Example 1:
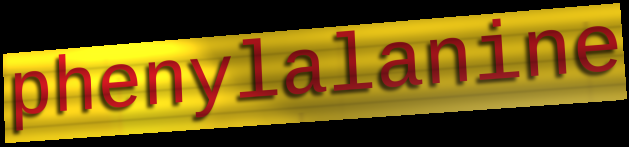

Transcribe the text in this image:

phenylalanine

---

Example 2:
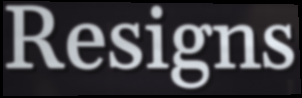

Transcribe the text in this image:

Resigns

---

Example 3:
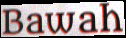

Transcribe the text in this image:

Bawah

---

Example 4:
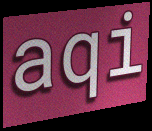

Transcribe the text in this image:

aqi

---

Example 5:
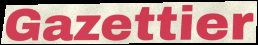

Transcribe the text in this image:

Gazettier